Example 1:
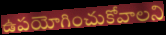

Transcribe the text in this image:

ఉపయోగించుకోవాలని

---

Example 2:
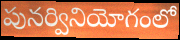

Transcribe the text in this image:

పునర్వినియోగంలో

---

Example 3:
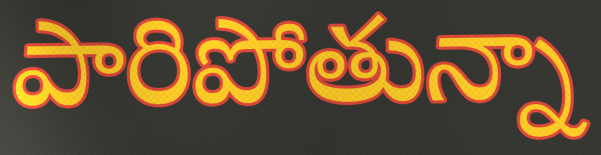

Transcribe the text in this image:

పారిపోతున్నా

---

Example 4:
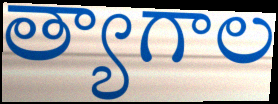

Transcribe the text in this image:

త్యాగాల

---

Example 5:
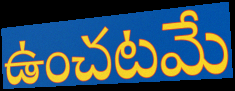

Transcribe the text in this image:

ఉంచటమే